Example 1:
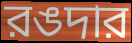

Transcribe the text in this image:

রঙদার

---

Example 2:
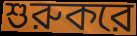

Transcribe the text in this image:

শুরুকরে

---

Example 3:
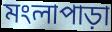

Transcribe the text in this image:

মংলাপাড়া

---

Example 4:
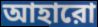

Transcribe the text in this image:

আহারো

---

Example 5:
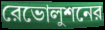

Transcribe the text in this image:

রেভোলুশনের